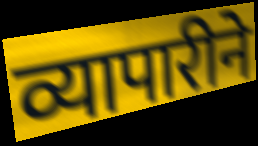
व्यापारीने